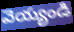
వెయ్యండి